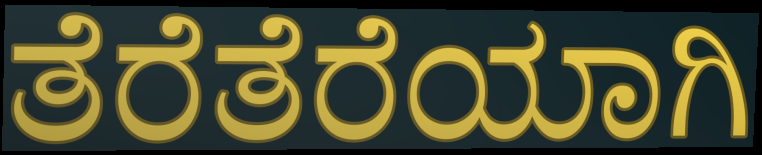
ತೆರೆತೆರೆಯಾಗಿ